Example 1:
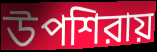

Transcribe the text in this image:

উপশিরায়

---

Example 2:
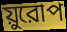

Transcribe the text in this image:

য়ুরোপ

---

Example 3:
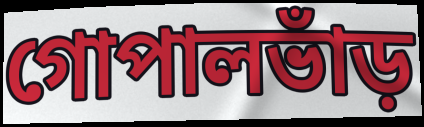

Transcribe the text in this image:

গোপালভাঁড়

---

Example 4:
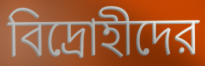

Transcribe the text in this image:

বিদ্রোহীদের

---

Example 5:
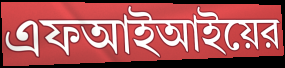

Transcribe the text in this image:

এফআইআইয়ের